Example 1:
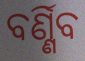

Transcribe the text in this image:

ବର୍ଣ୍ଣିବ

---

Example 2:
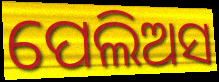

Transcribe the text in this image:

ପେଲିଅସ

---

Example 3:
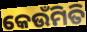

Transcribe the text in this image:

କେଉଁମିତି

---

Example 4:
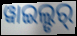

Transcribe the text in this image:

ୱାଇଲ୍ଡର୍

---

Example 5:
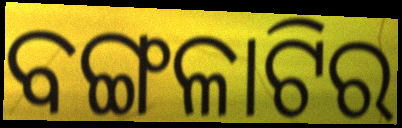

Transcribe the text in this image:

ବଙ୍ଗଳାଟିର